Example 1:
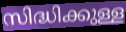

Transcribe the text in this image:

സിദ്ധിക്കുള്ള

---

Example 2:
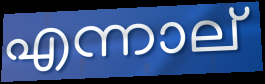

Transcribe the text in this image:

എന്നാല്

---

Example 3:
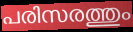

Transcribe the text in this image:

പരിസരത്തും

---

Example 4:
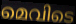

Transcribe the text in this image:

മെവിടെ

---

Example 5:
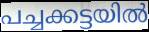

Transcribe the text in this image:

പച്ചക്കട്ടയിൽ